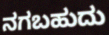
ನಗಬಹುದು